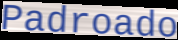
Padroado